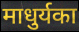
माधुर्यका